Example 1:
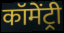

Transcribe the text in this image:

कॉमेंट्री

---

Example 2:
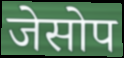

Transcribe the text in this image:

जेसोप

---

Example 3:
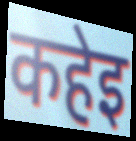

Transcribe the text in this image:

कहेइ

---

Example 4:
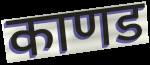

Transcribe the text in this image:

काणड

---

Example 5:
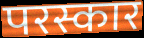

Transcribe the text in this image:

परस्कार